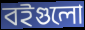
বইগুলো